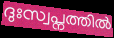
ദുഃസ്വപ്നത്തിൽ